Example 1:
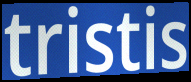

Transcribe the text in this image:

tristis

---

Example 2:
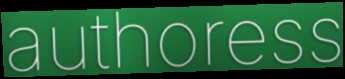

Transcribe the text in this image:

authoress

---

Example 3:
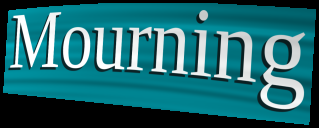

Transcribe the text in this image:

Mourning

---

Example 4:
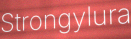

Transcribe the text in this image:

Strongylura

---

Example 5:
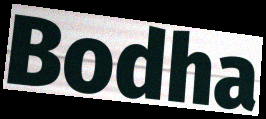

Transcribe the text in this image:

Bodha